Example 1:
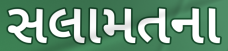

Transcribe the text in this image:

સલામતના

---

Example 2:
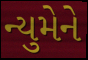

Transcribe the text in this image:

ન્યુમેને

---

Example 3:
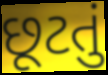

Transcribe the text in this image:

છૂટતું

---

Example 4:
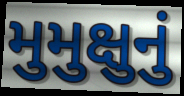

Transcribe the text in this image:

મુમુક્ષુનું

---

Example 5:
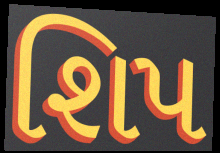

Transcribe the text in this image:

શિપ